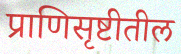
प्राणिसृष्टीतील